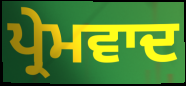
ਪ੍ਰੇਮਵਾਦ